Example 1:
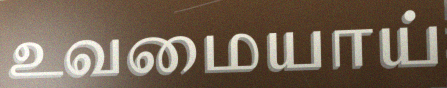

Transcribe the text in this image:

உவமையாய்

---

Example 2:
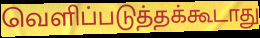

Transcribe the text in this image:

வெளிப்படுத்தக்கூடாது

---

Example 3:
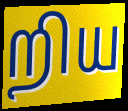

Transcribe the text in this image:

றிய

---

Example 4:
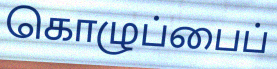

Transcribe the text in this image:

கொழுப்பைப்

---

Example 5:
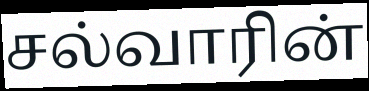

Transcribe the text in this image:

சல்வாரின்